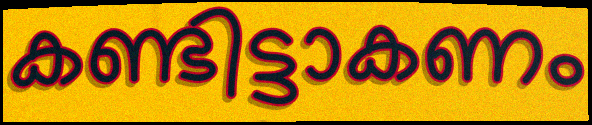
കണ്ടിട്ടാകണം